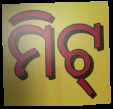
ମିଟ୍